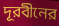
দূরবীনের